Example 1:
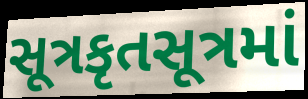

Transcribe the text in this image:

સૂત્રકૃતસૂત્રમાં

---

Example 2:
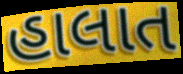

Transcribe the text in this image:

હાલાત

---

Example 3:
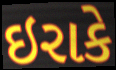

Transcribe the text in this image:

ઇરાકે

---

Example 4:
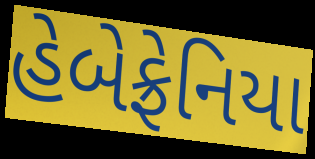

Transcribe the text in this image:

હેબેફ્રેનિયા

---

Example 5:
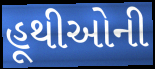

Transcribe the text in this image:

હૂથીઓની